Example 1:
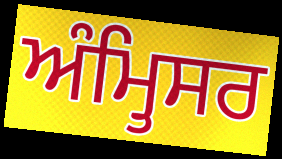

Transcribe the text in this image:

ਅੰਮ੍ਤਿਸਰ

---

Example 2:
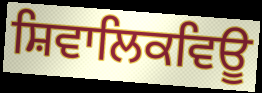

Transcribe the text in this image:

ਸ਼ਿਵਾਲਿਕਵਿਊ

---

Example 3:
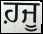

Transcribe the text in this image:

ਹ਼ਜੂ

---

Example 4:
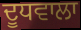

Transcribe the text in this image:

ਦੂਧਵਾਲਾ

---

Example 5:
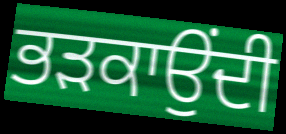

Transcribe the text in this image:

ਭੜਕਾਉਂਦੀ